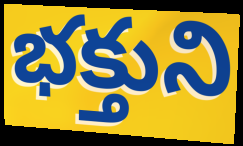
భక్తుని